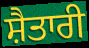
ਸ਼ੈਤਾਰੀ